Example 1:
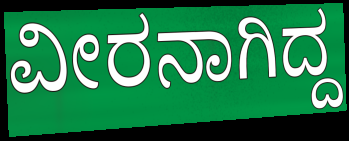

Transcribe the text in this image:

ವೀರನಾಗಿದ್ದ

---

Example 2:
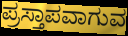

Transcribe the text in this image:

ಪ್ರಸ್ತಾಪವಾಗುವ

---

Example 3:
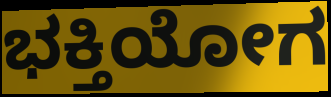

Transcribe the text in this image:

ಭಕ್ತಿಯೋಗ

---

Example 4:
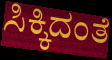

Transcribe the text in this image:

ಸಿಕ್ಕಿದಂತೆ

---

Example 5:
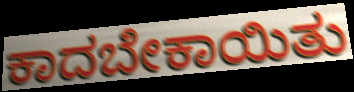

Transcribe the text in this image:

ಕಾದಬೇಕಾಯಿತು